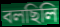
বলছিলি